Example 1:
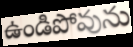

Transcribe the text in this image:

ఉండిపోవును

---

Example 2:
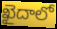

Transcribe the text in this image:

ఖైదాలో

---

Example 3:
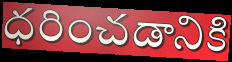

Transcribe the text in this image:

ధరించడానికి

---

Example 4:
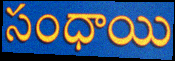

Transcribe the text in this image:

సంధాయి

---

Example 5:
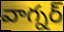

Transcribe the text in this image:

వాగ్నర్